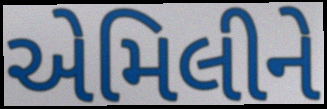
એમિલીને